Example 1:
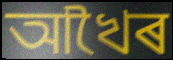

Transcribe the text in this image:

আখৈৰ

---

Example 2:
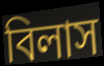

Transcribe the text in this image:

বিলাস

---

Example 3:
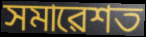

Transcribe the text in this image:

সমাৱেশত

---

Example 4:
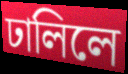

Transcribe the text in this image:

ঢালিলে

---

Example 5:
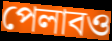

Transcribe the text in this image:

পেলাবও